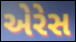
એરેસ